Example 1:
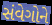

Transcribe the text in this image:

સંવેગોને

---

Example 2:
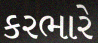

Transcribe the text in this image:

કરભારે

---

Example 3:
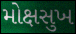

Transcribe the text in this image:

મોક્ષસુખ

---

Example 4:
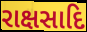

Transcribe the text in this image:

રાક્ષસાદિ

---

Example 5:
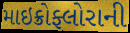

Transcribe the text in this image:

માઇક્રોફ્લોરાની